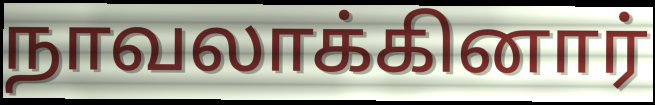
நாவலாக்கினார்